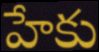
హేకు